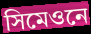
সিমেওনে